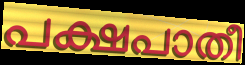
പക്ഷപാതീ